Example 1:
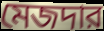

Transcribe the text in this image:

মেজদার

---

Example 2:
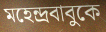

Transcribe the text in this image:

মহেন্দ্রবাবুকে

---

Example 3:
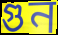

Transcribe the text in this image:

গুন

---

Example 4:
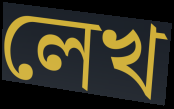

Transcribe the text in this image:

লেখ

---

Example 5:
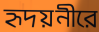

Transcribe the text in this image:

হৃদয়নীরে